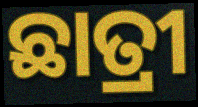
ଛାତ୍ରୀ